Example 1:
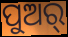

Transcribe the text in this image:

ପୁଅର୍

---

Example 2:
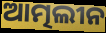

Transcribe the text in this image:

ଆତ୍ମଲୀନ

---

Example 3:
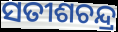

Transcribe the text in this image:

ସତୀଶଚନ୍ଦ୍ର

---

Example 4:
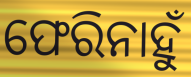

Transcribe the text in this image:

ଫେରିନାହୁଁ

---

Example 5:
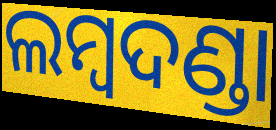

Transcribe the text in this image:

ଲମ୍ୱଦଣ୍ଡା